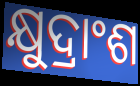
କ୍ଷୁଦ୍ରାଂଶ